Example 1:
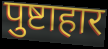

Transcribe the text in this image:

पुष्टाहार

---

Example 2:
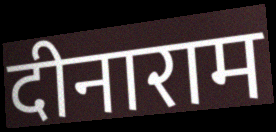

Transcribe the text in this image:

दीनाराम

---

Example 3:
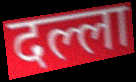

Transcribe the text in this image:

दल्ला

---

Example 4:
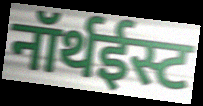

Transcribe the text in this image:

नॉर्थईस्ट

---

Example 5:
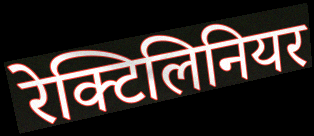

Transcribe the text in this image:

रेक्टिलिनियर